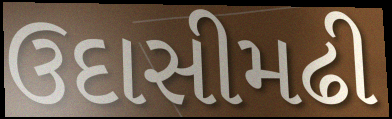
ઉદાસીમઢી